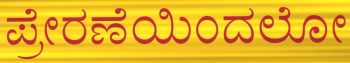
ಪ್ರೇರಣೆಯಿಂದಲೋ